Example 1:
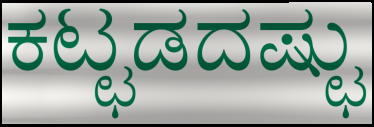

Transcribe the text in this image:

ಕಟ್ಟಡದಷ್ಟು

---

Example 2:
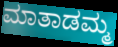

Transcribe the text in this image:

ಮಾತಾಡಮ್ಮ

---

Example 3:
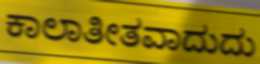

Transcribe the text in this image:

ಕಾಲಾತೀತವಾದುದು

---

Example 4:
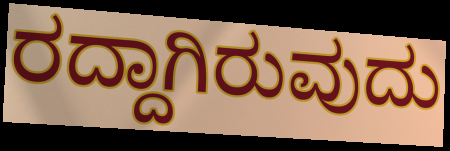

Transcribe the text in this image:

ರದ್ದಾಗಿರುವುದು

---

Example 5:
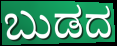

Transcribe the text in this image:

ಬುಡದ